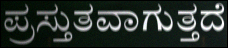
ಪ್ರಸ್ತುತವಾಗುತ್ತದೆ